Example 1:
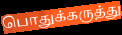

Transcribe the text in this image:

பொதுக்கருத்து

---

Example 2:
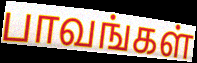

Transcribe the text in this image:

பாவங்கள்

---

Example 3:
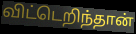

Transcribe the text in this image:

விட்டெறிந்தான்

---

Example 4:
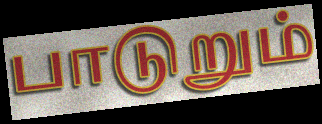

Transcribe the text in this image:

பாடுறும்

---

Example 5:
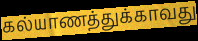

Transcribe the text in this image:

கல்யாணத்துக்காவது